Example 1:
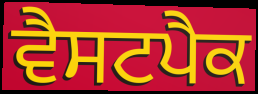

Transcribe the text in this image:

ਵੈਸਟਪੈਕ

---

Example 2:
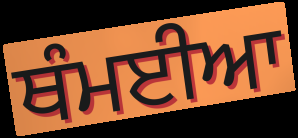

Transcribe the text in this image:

ਥੰਮਈਆ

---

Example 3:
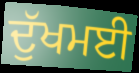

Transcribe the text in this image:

ਦੁੱਖਮਈ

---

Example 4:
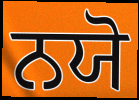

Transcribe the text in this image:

ਨਯੋ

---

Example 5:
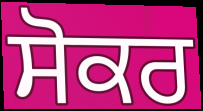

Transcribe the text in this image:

ਸੋਕਰ